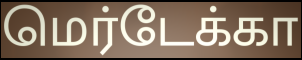
மெர்டேக்கா